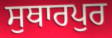
ਸੁਥਾਰਪੁਰ